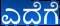
ಎದೆಗೆ